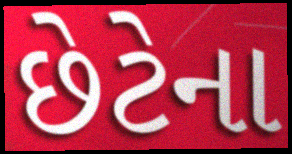
છેટેના